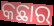
କଛାର